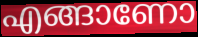
എങ്ങാണോ